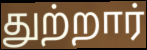
துற்றார்